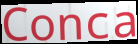
Conca